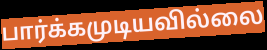
பார்க்கமுடியவில்லை